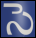
సె